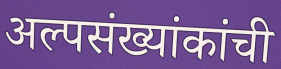
अल्पसंख्यांकांची